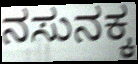
ನಸುನಕ್ಕ